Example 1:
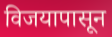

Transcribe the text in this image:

विजयापासून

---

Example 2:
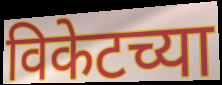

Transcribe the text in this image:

विकेटच्या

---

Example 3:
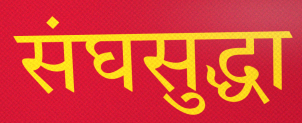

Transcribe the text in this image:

संघसुद्धा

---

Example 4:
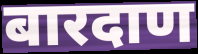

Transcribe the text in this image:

बारदाण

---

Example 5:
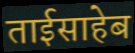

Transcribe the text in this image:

ताईसाहेब